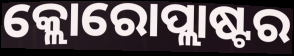
କ୍ଲୋରୋପ୍ଲାଷ୍ଟର